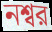
নশ্বর